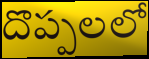
దొప్పలలో